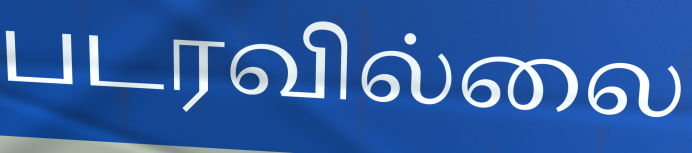
படரவில்லை